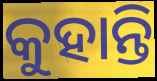
କୁହାନ୍ତି